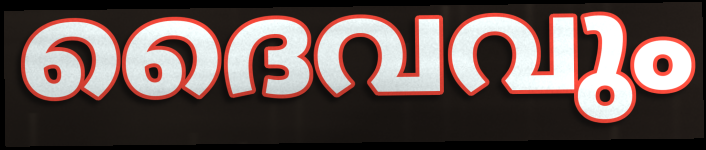
ദൈവവും